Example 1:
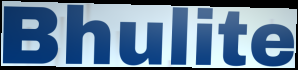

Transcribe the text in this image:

Bhulite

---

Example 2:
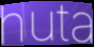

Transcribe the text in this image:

huta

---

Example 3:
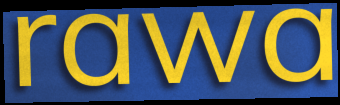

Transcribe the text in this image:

rawa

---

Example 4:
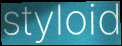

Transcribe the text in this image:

styloid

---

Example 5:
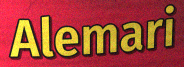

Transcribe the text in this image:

Alemari